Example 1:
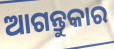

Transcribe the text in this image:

ଆଗନ୍ତୁକାର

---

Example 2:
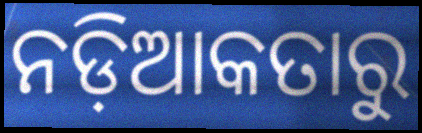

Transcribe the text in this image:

ନଡ଼ିଆକତାରୁ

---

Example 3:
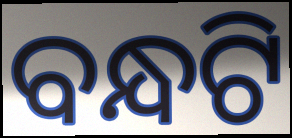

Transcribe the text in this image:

ବନ୍ଧଟି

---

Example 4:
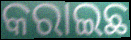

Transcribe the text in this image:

କରାଇଛ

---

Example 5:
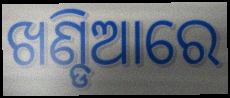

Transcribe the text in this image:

ଖଣ୍ଡିଆରେ